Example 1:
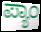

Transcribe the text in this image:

ಪ್ಯಾಂ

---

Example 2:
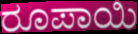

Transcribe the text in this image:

ರೂಪಾಯಿ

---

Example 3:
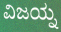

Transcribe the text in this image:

ವಿಜಯ್ನ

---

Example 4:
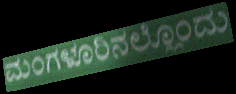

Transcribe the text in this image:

ಮಂಗಳೂರಿನಲ್ಲೊಂದು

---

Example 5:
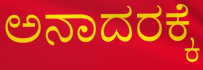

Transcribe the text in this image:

ಅನಾದರಕ್ಕೆ